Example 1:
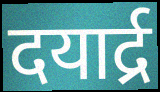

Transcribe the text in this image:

दयार्द्र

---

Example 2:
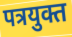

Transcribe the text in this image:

पत्रयुक्त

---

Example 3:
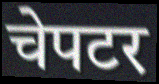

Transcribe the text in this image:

चेपटर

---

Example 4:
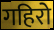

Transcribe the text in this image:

गहिरो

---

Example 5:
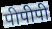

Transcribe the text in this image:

पीपीपी